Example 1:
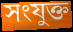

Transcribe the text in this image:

সংযুক্ত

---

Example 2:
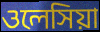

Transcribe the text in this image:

ওলেসিয়া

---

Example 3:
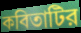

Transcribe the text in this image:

কবিতাটির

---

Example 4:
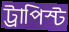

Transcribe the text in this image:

ট্রাপিস্ট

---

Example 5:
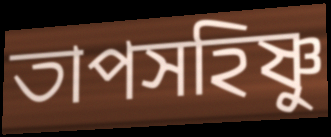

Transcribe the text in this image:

তাপসহিষ্ণু